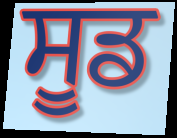
ਸੂਡ